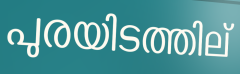
പുരയിടത്തില്